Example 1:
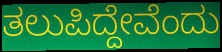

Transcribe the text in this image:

ತಲುಪಿದ್ದೇವೆಂದು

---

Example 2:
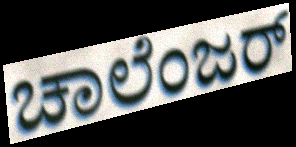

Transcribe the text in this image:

ಚಾಲೆಂಜರ್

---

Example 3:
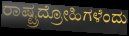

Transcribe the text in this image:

ರಾಷ್ಟ್ರದ್ರೋಹಿಗಳೆಂದು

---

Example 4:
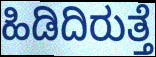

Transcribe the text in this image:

ಹಿಡಿದಿರುತ್ತೆ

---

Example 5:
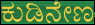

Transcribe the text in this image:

ಕುಡಿನೇಣ